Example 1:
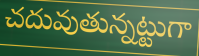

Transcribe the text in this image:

చదువుతున్నట్టుగా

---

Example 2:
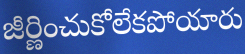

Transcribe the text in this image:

జీర్ణించుకోలేకపోయారు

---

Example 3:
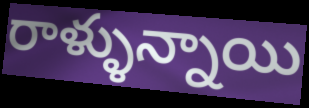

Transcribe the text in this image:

రాళ్ళున్నాయి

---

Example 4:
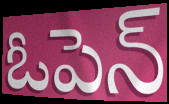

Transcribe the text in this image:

ఓపెన్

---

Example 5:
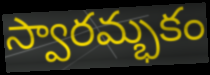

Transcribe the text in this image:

స్వారమ్భకం